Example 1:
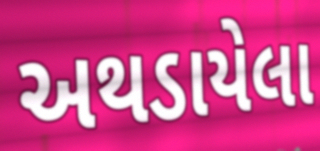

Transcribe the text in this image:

અથડાયેલા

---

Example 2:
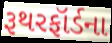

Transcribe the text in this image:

રૂથરફૉર્ડના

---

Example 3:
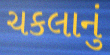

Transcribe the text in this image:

ચકલાનું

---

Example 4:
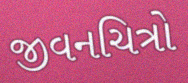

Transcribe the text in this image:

જીવનચિત્રો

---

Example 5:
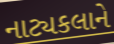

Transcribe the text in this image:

નાટ્યકલાને